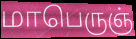
மாபெருஞ்